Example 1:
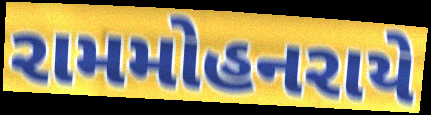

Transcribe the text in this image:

રામમોહનરાયે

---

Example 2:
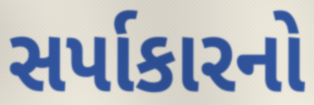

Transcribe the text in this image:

સર્પાકારનો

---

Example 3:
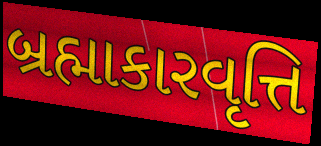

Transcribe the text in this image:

બ્રહ્માકારવૃત્તિ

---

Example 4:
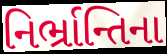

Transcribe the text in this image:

નિર્ભ્રાન્તિના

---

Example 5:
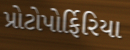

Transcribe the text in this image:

પ્રોટોપોર્ફિરિયા